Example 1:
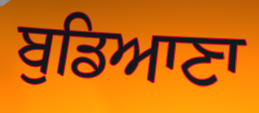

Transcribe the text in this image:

ਬੁਡਿਆਣਾ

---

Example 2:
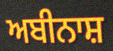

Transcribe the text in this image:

ਅਬੀਨਾਸ਼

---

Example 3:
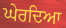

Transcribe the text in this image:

ਘੇਰਦਿਆ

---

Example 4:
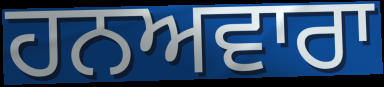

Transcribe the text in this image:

ਹਨਅਵਾਰਾ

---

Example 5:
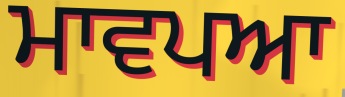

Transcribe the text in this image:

ਮਾਵਪਆ